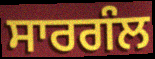
ਸਾਰਗੰਲ